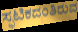
ಸ್ಫಟಿಕದಂತಿರುವ